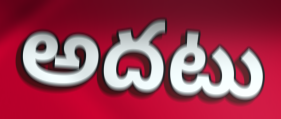
అదటు